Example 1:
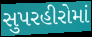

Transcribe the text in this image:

સુપરહીરોમાં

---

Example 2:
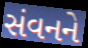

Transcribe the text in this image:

સંવનને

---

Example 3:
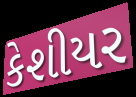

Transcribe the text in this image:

કેશીયર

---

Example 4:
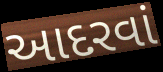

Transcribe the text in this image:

આદરવાં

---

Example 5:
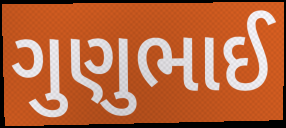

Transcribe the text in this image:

ગુણુભાઈ